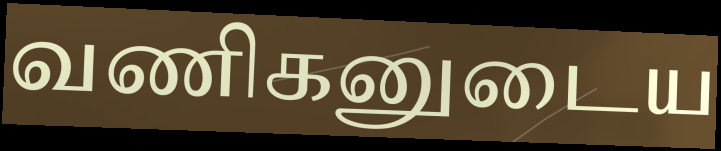
வணிகனுடைய